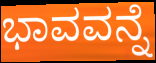
ಭಾವವನ್ನೆ